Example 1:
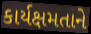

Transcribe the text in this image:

કાર્યક્ષમતાને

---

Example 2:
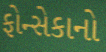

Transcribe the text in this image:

ફોન્સેકાનો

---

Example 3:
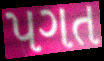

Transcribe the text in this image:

પગત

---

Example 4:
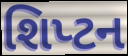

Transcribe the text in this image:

શિપ્ટન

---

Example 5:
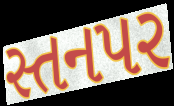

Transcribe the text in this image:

સ્તનપર